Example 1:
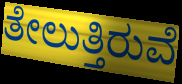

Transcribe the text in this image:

ತೇಲುತ್ತಿರುವೆ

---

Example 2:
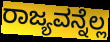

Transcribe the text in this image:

ರಾಜ್ಯವನ್ನೆಲ್ಲ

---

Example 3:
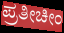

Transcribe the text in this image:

ಪ್ರತೀಚೀಂ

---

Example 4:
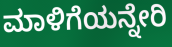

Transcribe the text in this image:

ಮಾಳಿಗೆಯನ್ನೇರಿ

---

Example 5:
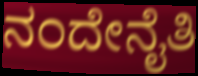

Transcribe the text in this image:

ನಂದೇನೈತಿ